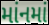
માંનમાં